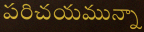
పరిచయమున్నా